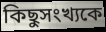
কিছুসংখ্যকে